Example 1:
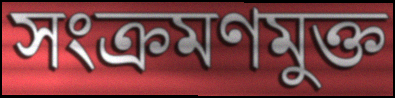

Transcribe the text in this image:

সংক্রমণমুক্ত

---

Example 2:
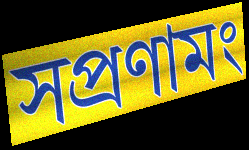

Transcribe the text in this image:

সপ্রণামং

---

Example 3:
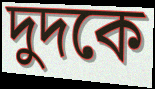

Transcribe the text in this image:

দুদকে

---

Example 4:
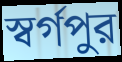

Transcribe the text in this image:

স্বর্গপুর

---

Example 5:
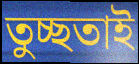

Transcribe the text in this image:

তুচ্ছতাই